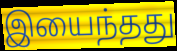
இயைந்தது